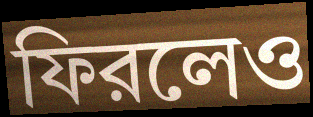
ফিরলেও